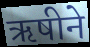
ऋषीने